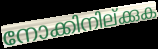
നോക്കിനില്ക്കുക